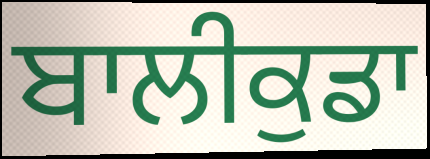
ਬਾਲੀਕੁਡਾ